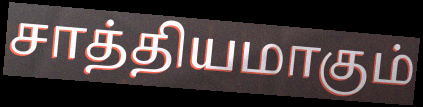
சாத்தியமாகும்